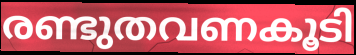
രണ്ടുതവണകൂടി